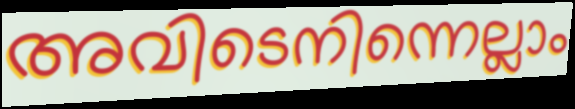
അവിടെനിന്നെല്ലാം